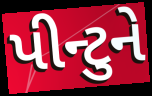
પીન્ટુને